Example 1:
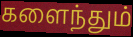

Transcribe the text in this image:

களைந்தும்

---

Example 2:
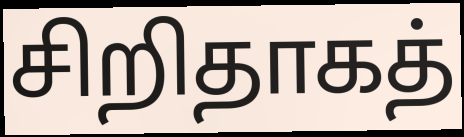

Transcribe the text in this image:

சிறிதாகத்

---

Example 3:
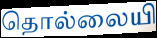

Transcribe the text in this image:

தொல்லையி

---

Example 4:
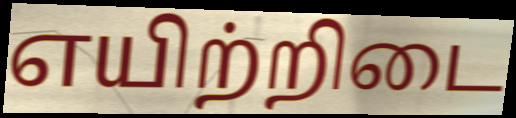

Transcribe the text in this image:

எயிற்றிடை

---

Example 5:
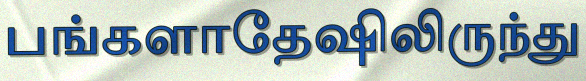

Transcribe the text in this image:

பங்களாதேஷிலிருந்து